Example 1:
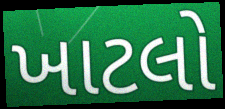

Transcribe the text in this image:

ખાટલો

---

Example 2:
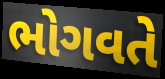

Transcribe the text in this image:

ભોગવતે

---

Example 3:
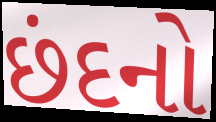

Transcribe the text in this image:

છંદનો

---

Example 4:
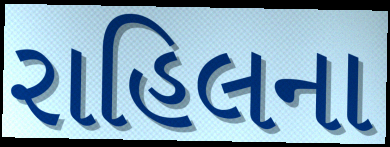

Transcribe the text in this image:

રાહિલના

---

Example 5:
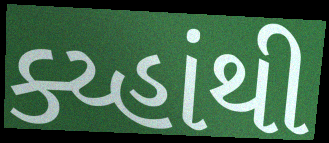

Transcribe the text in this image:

ક્ય્હાંથી